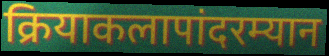
क्रियाकलापांदरम्यान